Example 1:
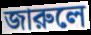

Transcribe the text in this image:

জারুলে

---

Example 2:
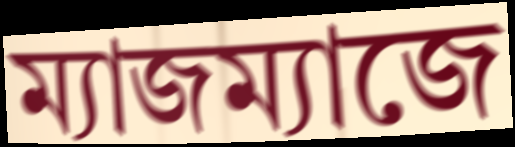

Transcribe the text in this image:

ম্যাজম্যাজে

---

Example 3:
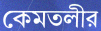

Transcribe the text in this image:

কেমতলীর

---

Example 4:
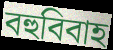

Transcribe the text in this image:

বহুবিবাহ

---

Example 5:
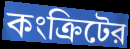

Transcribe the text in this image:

কংক্রিটের